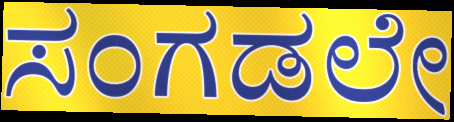
ಸಂಗಡಲೇ